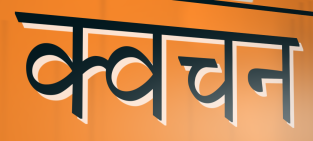
क्वचन